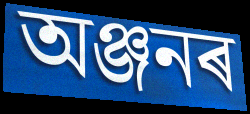
অঞ্জনৰ